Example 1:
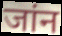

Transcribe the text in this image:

जांन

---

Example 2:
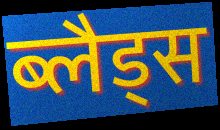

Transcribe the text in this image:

ब्लैड्स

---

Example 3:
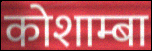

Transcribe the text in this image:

कोशाम्बा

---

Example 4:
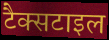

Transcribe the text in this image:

टैक्सटाइल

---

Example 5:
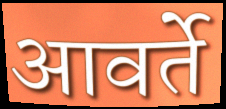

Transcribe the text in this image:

आवर्ते